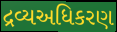
દ્રવ્યઅધિકરણ